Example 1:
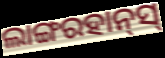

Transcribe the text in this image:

ଲାଙ୍ଗରହାନ୍‌ସ୍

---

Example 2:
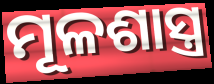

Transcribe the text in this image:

ମୂଳଶାସ୍ତ୍ର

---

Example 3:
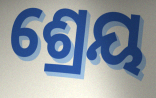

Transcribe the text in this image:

ଶ୍ରେୟ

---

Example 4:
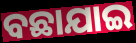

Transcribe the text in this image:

ବଛାଯାଇ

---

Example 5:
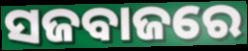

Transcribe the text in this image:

ସଜବାଜରେ